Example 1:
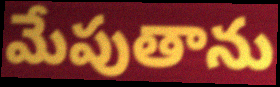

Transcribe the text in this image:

మేపుతాను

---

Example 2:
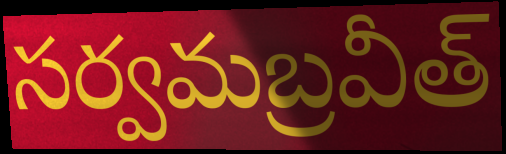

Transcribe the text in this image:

సర్వమబ్రవీత్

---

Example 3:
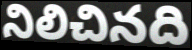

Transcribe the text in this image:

నిలిచినది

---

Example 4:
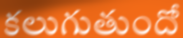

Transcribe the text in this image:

కలుగుతుందో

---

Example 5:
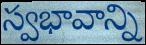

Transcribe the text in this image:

స్వభావాన్ని